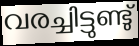
വരച്ചിട്ടുണ്ടു്